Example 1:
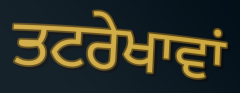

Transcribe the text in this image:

ਤਟਰੇਖਾਵਾਂ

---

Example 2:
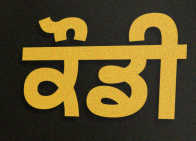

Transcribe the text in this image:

ਕੌਡੀ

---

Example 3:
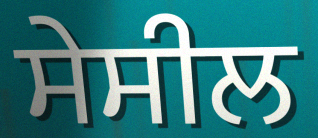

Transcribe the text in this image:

ਸੇਸੀਲ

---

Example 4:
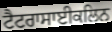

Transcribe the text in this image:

ਟੈਟਰਾਸਾਈਕਲਿਨ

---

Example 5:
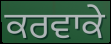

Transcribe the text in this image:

ਕਰਵਾਕੇ